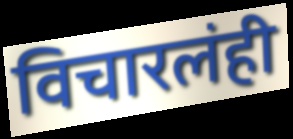
विचारलंही